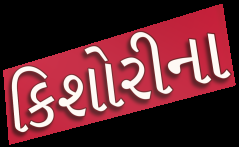
કિશોરીના